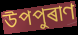
উপপুৰাণ